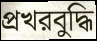
প্রখরবুদ্ধি